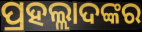
ପ୍ରହଲ୍ଲାଦଙ୍କର